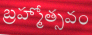
బ్రహ్మోత్సవం